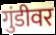
गुंडीवर